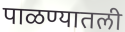
पाळण्यातली